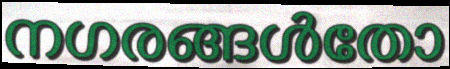
നഗരങ്ങൾതോ